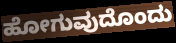
ಹೋಗುವುದೊಂದು